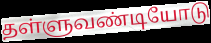
தள்ளுவண்டியோடு